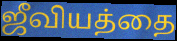
ஜீவியத்தை